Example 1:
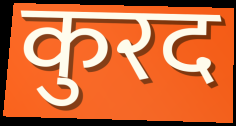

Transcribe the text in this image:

कुरद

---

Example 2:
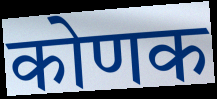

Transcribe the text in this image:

कोणक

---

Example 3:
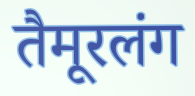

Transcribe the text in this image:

तैमूरलंग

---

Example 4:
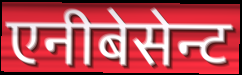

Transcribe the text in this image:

एनीबेसेन्ट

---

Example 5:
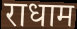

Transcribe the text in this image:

राधाम